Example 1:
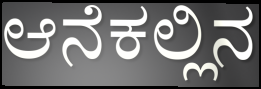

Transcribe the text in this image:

ಆನೆಕಲ್ಲಿನ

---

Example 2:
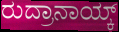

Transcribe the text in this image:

ರುದ್ರಾನಾಯ್ಕ್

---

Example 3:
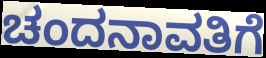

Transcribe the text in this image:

ಚಂದನಾವತಿಗೆ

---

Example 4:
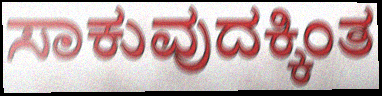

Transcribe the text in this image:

ಸಾಕುವುದಕ್ಕಿಂತ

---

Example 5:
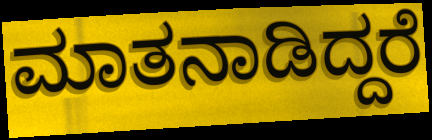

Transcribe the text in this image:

ಮಾತನಾಡಿದ್ದರೆ